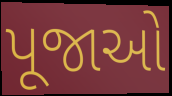
પૂજાઓ